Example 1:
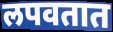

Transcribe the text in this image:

लपवतात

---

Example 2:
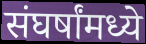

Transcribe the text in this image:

संघर्षांमध्ये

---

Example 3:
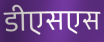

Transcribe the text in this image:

डीएसएस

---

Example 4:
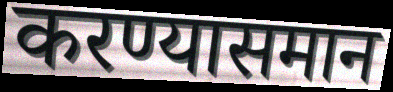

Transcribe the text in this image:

करण्यासमान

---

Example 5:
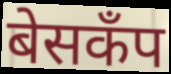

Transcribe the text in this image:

बेसकँप